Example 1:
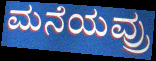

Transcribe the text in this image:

ಮನೆಯವ್ರು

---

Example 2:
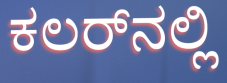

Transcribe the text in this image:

ಕಲರ್‌ನಲ್ಲಿ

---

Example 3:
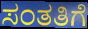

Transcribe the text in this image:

ಸಂತತಿಗೆ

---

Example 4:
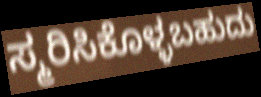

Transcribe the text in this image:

ಸ್ಮರಿಸಿಕೊಳ್ಳಬಹುದು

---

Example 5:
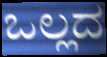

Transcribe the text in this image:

ಒಲ್ಲದ